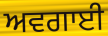
ਅਵਗਾਈ